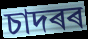
চাদৰৰ